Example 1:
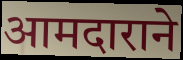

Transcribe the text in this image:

आमदाराने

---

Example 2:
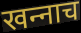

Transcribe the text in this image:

खन्नाच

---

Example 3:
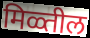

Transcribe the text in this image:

मिळ्तील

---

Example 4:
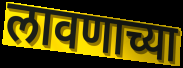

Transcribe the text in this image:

लावणाच्या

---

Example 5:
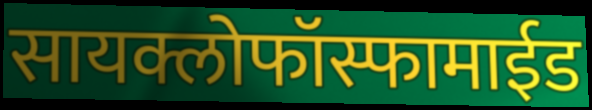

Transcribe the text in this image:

सायक्लोफॉस्फामाईड